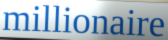
millionaire